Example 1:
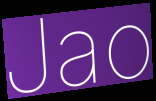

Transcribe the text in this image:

Jao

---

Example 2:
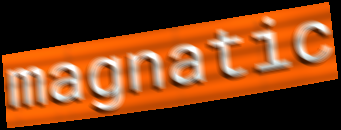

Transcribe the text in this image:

magnatic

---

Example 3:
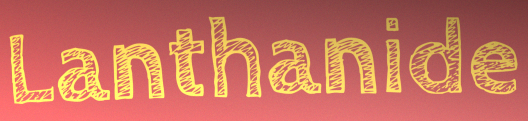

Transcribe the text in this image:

Lanthanide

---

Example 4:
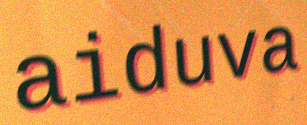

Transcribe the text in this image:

aiduva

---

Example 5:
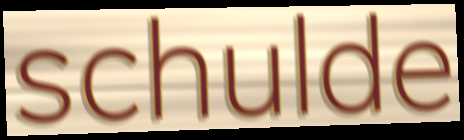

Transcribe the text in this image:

schulde